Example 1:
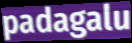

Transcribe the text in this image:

padagalu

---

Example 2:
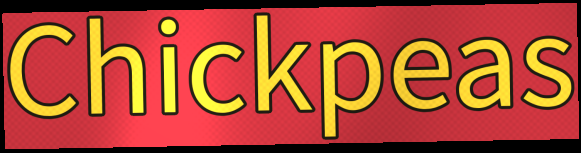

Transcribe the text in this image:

Chickpeas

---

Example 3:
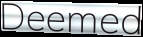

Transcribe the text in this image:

Deemed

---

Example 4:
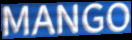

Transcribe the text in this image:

MANGO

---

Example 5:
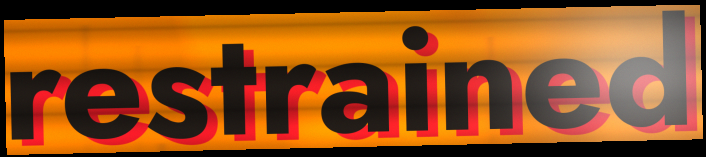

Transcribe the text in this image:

restrained